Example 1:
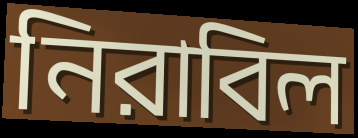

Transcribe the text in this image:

নিরাবিল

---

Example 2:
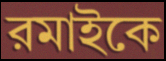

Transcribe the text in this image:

রমাইকে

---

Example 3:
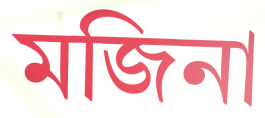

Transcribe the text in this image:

মজিনা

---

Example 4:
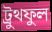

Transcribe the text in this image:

ট্রুথফুল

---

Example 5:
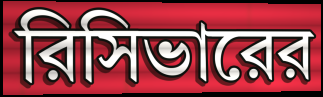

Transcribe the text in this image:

রিসিভারের